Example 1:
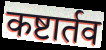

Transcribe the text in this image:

कष्टार्तव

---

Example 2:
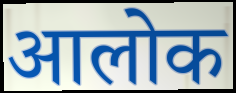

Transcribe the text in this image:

आलोक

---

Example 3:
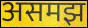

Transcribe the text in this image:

असमझ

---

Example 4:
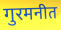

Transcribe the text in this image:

गुरमनीत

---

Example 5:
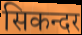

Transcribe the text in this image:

सिकन्दर